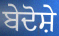
ਬੇਦੋਸ਼ੇ